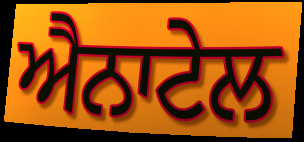
ਐਨਾਟੇਲ